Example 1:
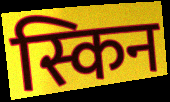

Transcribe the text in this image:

स्‍किन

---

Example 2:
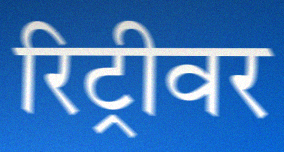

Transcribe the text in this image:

रिट्रीवर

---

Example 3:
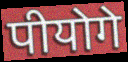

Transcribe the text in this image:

पीयोगे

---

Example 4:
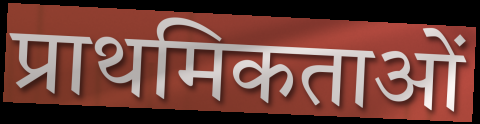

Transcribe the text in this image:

प्राथमिकताओं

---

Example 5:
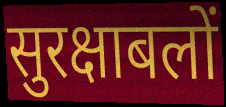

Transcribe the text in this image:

सुरक्षाबलों